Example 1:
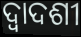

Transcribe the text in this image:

ଦ୍ବାଦଶୀ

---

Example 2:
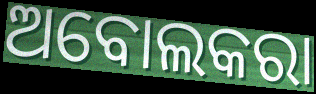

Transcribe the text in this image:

ଅବୋଲକରା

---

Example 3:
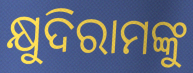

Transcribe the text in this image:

କ୍ଷୁଦିରାମଙ୍କୁ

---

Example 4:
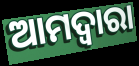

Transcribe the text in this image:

ଆମଦ୍ୱାରା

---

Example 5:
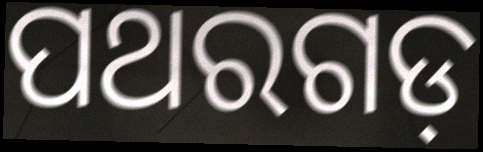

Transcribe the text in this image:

ପଥରଗଡ଼